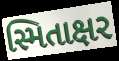
સ્મિતાક્ષર